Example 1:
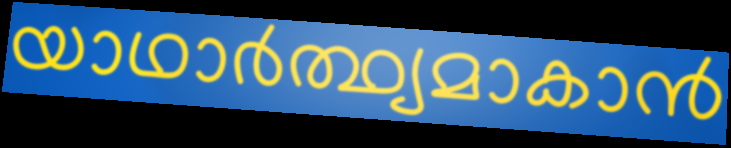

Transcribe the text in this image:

യാഥാർത്ഥ്യമാകാൻ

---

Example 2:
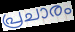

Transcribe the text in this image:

പ്രചാരം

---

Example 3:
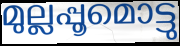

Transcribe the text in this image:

മുല്ലപ്പൂമൊട്ടു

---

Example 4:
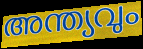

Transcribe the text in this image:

അന്ത്യവും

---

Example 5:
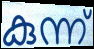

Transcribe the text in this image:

കുന്ന്